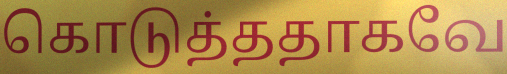
கொடுத்ததாகவே